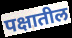
पक्षातील